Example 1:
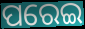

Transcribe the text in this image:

ପରେଇ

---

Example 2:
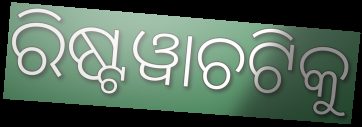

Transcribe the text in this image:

ରିଷ୍ଟୱାଚଟିକୁ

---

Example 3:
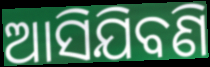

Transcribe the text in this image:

ଆସିଯିବଣି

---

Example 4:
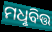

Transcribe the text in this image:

ମଧୢବିତ୍ତ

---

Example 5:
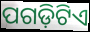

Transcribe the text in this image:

ପଗଡ଼ିଟିଏ